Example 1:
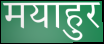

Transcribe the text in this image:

मयाहुर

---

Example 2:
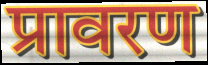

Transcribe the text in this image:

प्रावरण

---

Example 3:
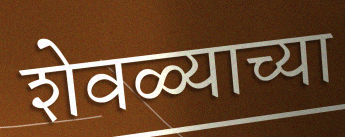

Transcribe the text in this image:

शेवळ्याच्या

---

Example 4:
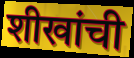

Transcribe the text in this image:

शीखांची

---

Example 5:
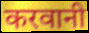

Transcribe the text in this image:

करवानी